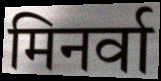
मिनर्वा